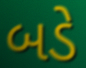
બડે